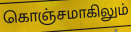
கொஞ்சமாகிலும்